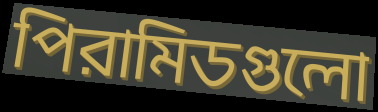
পিরামিডগুলো